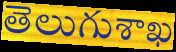
తెలుగుశాఖ